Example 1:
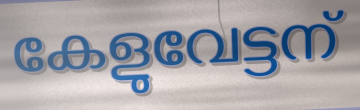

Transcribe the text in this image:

കേളുവേട്ടന്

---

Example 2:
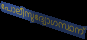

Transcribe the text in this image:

പോലീസുദ്യോഗസ്ഥന്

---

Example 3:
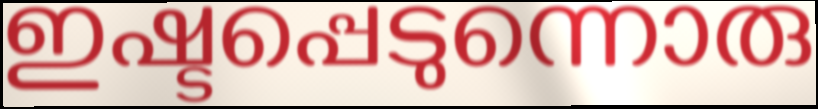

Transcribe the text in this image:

ഇഷ്ടപ്പെടുന്നൊരു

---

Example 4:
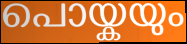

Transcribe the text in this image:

പൊയ്കയും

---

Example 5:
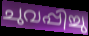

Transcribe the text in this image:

ചുവപ്പിച്ചു